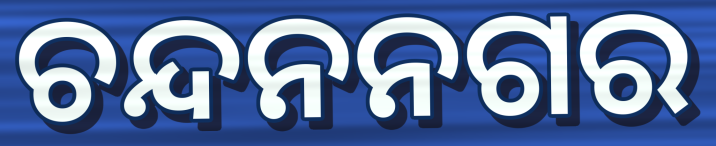
ଚନ୍ଦନନଗର